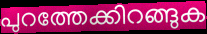
പുറത്തേക്കിറങ്ങുക